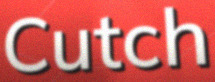
Cutch